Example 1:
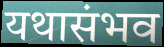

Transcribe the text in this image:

यथासंभव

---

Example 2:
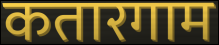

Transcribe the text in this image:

कतारगाम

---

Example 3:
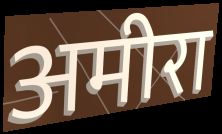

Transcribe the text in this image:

अमीरा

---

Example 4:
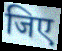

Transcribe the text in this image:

जिए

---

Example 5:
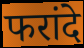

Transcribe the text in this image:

फरांदे